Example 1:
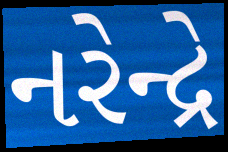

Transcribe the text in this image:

નરેન્દ્રે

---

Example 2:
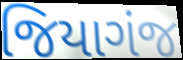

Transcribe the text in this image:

જિયાગંજ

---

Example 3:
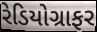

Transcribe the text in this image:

રેડિયોગ્રાફર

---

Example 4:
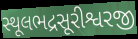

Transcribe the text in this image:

સ્થૂલભદ્રસૂરીશ્વરજી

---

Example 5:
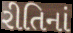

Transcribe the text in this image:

રીતિનાં